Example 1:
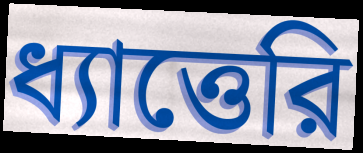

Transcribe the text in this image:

ধ্যাত্তেরি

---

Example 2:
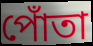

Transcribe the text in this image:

পোঁতা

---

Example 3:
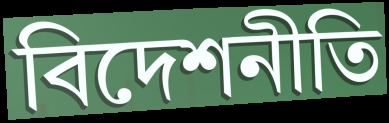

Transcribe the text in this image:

বিদেশনীতি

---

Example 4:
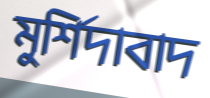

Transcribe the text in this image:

মুর্শিদাবাদ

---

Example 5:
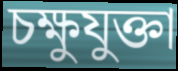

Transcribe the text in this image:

চক্ষুযুক্তা